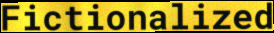
Fictionalized